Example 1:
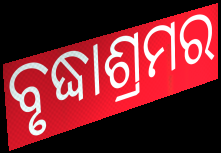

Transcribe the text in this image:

ବୃଦ୍ଧାଶ୍ରମର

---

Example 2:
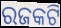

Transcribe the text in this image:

ରଜକଟି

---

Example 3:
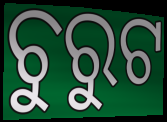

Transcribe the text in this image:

ଚୁରୁଟ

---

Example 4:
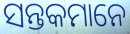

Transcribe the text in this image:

ସନ୍ତକମାନେ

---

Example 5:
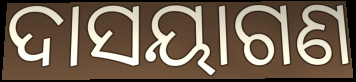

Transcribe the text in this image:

ଦାସୟାଗଣ